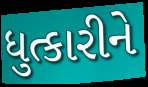
ધુત્કારીને